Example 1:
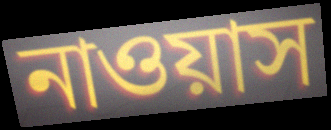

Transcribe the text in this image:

নাওয়াস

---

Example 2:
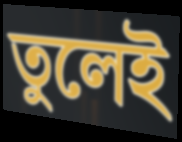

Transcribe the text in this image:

তুলেই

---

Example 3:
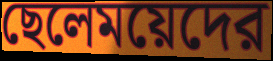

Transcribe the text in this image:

ছেলেময়েদের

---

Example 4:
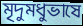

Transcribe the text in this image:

মৃদুমধুভাষে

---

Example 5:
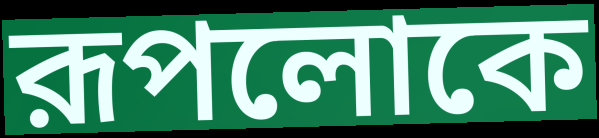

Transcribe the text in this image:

রূপলোকে